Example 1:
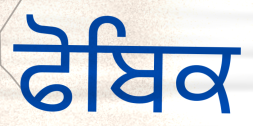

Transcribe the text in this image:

ਫੋਬਿਕ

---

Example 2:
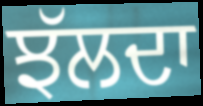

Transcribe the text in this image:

ਝੱਲਦਾ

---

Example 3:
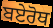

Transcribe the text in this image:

ਬਏਰੋਥ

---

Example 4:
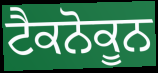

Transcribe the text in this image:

ਟੈਕਨੋਕੂਨ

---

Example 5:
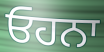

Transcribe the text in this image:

ਓਹਨਾ